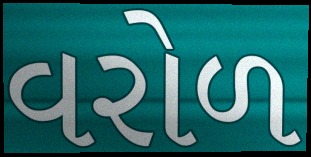
વરોળ